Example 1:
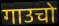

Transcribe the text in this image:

गाउचो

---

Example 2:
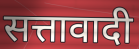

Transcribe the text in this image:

सत्तावादी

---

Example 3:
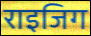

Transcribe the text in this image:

राइजिग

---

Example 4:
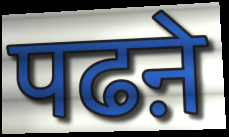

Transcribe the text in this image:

पढऩे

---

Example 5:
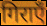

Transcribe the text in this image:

गिराएँ